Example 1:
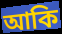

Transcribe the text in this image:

আকি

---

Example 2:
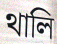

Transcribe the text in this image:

থালি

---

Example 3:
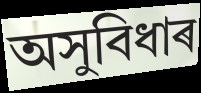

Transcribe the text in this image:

অসুবিধাৰ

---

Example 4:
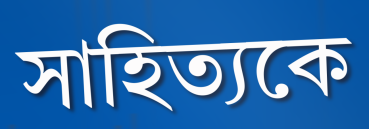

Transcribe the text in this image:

সাহিত্য়কে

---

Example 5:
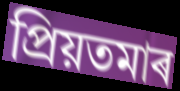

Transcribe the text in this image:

প্ৰিয়তমাৰ